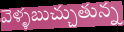
వెళ్ళబుచ్చుతున్న